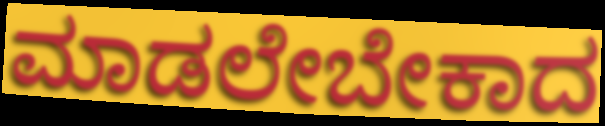
ಮಾಡಲೇಬೇಕಾದ